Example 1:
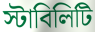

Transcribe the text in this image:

স্টাবিলিটি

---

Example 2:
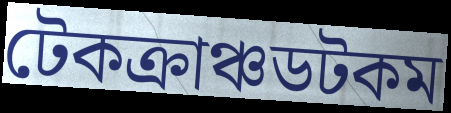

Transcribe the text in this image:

টেকক্রাঞ্চডটকম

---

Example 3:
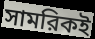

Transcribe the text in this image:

সামরিকই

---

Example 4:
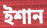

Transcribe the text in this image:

ইশান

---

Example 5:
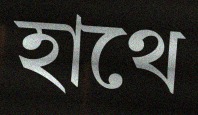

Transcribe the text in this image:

হাথে